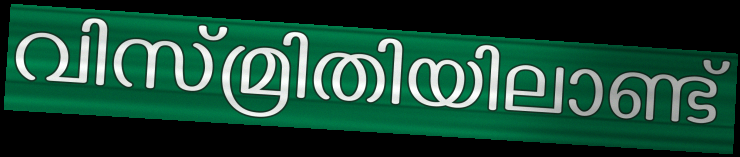
വിസ്മ്രിതിയിലാണ്ട്